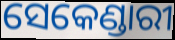
ସେକେଣ୍ଡାରୀ